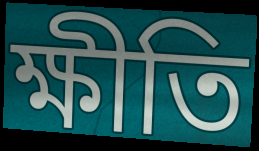
ক্ষীতি